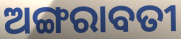
ଅଙ୍ଗରାବତୀ